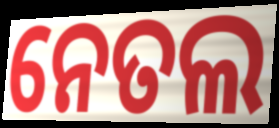
ନେତଲ